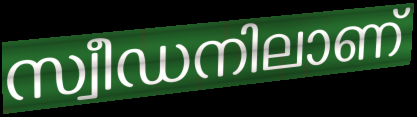
സ്വീഡനിലാണ്